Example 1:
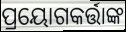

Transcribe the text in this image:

ପ୍ରୟୋଗକର୍ତ୍ତାଙ୍କ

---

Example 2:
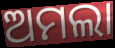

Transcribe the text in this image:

ଅମଲା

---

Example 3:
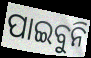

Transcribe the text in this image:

ପାଇବୁନି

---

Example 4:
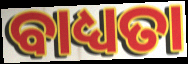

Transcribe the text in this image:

ବାଧ୍ୟତା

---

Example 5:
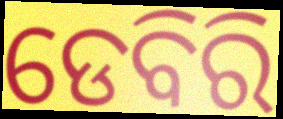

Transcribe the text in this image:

ଡେବିରି